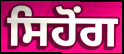
ਸਿਹੋਂਗ